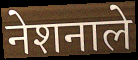
नेशनाले